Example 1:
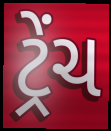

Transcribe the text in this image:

ટ્રેંચ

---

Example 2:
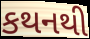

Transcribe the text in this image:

કથનથી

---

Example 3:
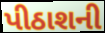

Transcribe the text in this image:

પીઠાશની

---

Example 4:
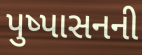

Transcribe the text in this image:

પુષ્પાસનની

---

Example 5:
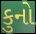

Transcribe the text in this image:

કુનો